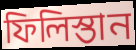
ফিলিস্তান